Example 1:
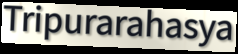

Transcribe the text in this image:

Tripurarahasya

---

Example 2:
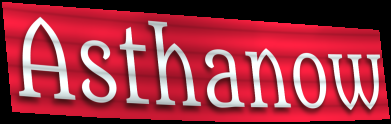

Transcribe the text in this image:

Asthanow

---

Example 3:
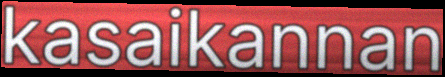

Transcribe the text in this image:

kasaikannan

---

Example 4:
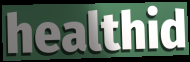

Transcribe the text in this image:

healthid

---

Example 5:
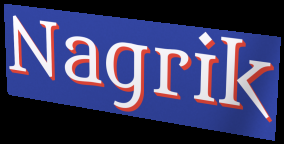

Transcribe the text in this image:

Nagrik